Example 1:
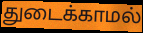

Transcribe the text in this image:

துடைக்காமல்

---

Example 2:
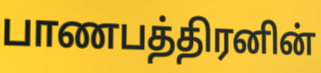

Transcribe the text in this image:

பாணபத்திரனின்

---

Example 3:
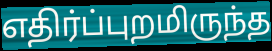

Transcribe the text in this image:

எதிர்ப்புறமிருந்த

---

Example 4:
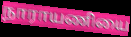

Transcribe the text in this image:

நாராயணியை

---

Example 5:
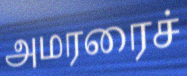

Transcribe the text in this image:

அமரரைச்